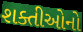
શક્તીઓનો